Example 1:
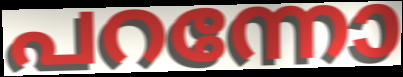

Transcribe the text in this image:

പറന്നോ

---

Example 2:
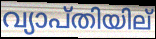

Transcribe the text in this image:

വ്യാപ്തിയില്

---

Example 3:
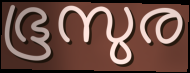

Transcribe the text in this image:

ഭൂസുര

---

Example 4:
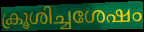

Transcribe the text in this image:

ക്രൂശിച്ചശേഷം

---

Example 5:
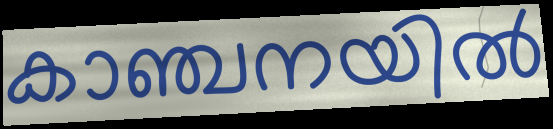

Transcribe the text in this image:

കാഞ്ചനയിൽ